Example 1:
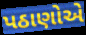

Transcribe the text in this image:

પઠાણોએ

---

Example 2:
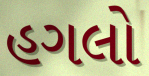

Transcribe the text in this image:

હગલો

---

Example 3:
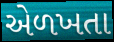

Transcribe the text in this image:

એળખતા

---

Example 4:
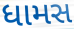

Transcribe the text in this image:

ધામસ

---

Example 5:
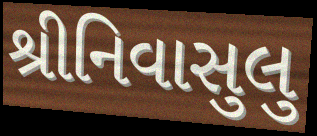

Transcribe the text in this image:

શ્રીનિવાસુલુ